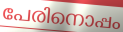
പേരിനൊപ്പം